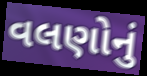
વલણોનું